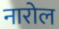
नारोल